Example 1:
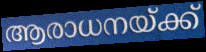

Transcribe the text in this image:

ആരാധനയ്ക്ക്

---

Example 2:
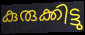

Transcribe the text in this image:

കുരുക്കിട്ടു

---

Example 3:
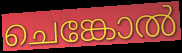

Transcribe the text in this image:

ചെങ്കോൽ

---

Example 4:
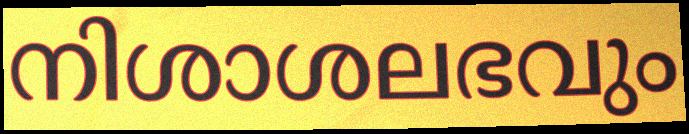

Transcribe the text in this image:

നിശാശലഭവും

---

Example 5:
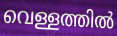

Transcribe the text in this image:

വെള്ളത്തിൽ